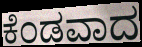
ಕೆಂಡವಾದ